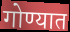
गोण्यात